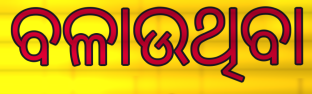
ବଳାଉଥିବା